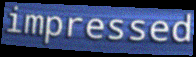
impressed